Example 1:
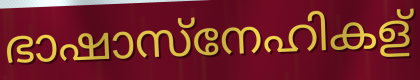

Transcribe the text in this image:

ഭാഷാസ്നേഹികള്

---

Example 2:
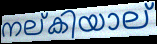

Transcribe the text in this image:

നല്കിയാല്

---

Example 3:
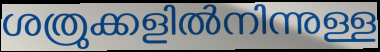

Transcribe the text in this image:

ശത്രുക്കളിൽനിന്നുള്ള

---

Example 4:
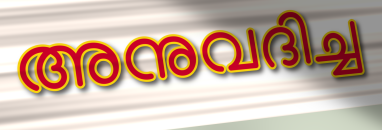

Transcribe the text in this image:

അനുവദിച്ച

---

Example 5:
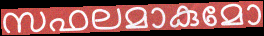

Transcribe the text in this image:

സഫലമാകുമോ